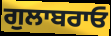
ਗੁਲਾਬਰਾਓ